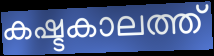
കഷ്ടകാലത്ത്